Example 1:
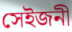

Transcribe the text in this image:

সেইজনী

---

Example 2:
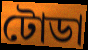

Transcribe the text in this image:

টোডা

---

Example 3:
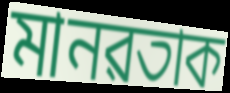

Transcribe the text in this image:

মানৱতাক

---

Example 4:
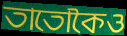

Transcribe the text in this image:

তাতোকৈও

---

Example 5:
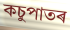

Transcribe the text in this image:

কচুপাতৰ